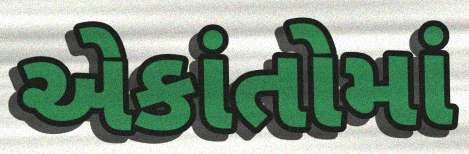
એકાંતોમાં